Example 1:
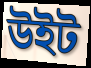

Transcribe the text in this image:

উইট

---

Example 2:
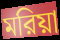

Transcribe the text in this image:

মরিয়া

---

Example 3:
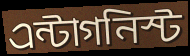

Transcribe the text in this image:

এন্টাগনিস্ট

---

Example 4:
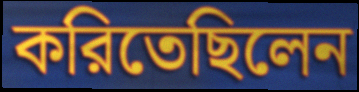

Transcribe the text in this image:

করিতেছিলেন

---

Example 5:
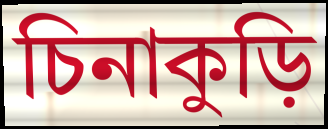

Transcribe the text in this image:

চিনাকুড়ি